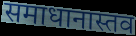
समाधानास्तव